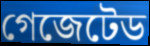
গেজেটেড